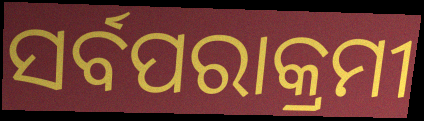
ସର୍ବପରାକ୍ରମୀ